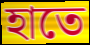
হাতে